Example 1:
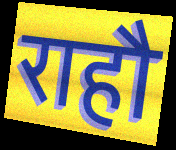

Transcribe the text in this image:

राहौ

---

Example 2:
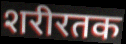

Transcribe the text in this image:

शरीरतक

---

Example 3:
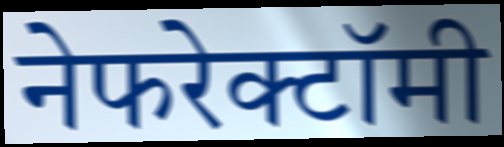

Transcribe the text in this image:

नेफरेक्टॉमी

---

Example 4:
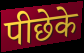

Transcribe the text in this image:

पीछेके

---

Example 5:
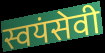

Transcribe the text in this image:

स्वयंसेवी